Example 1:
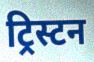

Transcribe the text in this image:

ट्रिस्टन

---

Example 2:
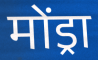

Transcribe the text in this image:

मोंड्रा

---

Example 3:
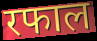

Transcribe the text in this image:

रफाल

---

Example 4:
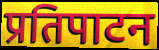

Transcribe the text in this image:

प्रतिपाटन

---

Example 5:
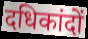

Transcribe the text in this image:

दधिकांदों